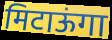
मिटाऊंगा